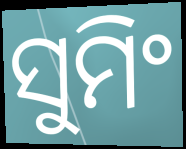
ସୁମିଂ